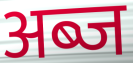
अब्ज